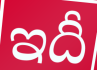
ఇదీ